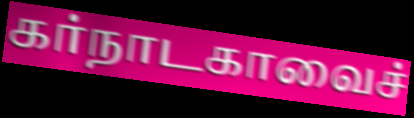
கர்நாடகாவைச்